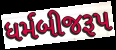
ધર્મબીજરૂપ